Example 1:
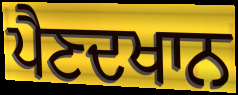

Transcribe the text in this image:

ਪੈਣਦਖਾਨ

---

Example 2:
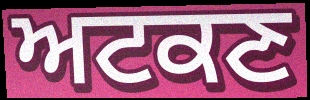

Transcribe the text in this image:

ਅਟਕਣ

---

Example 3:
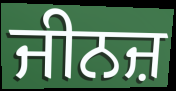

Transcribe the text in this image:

ਜੀਨਜ਼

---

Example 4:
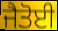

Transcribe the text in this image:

ਜੈਤੋਈ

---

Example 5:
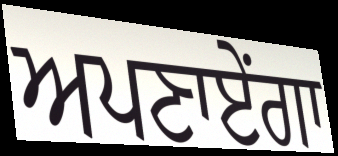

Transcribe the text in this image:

ਅਪਣਾਏਂਗਾ